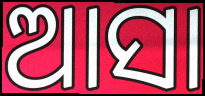
ଆସା